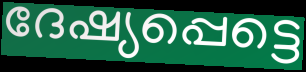
ദേഷ്യപ്പെട്ടെ